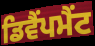
ਡਿਵੈਂਪਮੈਂਟ